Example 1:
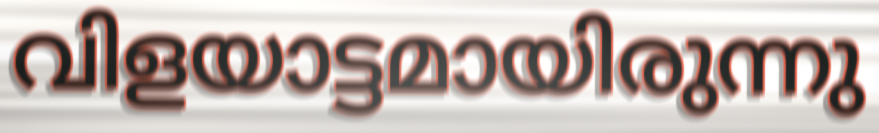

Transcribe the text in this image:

വിളയാട്ടമായിരുന്നു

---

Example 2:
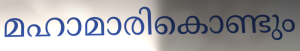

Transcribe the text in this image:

മഹാമാരികൊണ്ടും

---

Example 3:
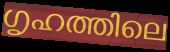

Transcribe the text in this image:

ഗൃഹത്തിലെ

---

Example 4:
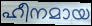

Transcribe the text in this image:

ഹീനമായ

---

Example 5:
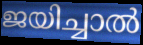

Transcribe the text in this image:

ജയിച്ചാൽ